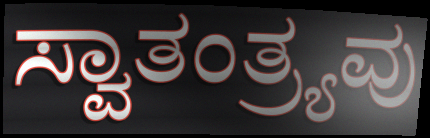
ಸ್ವಾತಂತ್ರ್ಯವು